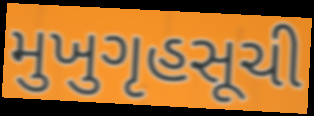
મુખુગૃહસૂચી